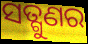
ସତ୍ଗୁଣର